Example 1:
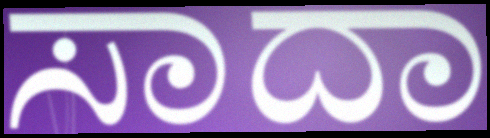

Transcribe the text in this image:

ಸಾದಾ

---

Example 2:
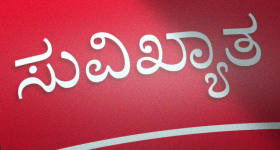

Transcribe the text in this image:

ಸುವಿಖ್ಯಾತ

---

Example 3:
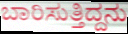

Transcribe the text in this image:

ಬಾರಿಸುತ್ತಿದ್ದನು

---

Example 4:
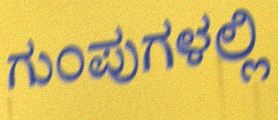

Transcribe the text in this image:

ಗುಂಪುಗಳಲ್ಲಿ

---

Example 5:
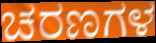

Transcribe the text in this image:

ಚರಣಗಳ